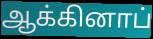
ஆக்கினாப்